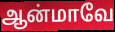
ஆன்மாவே